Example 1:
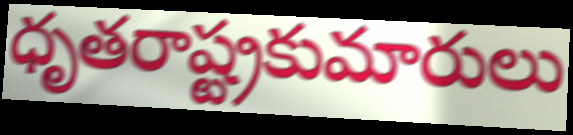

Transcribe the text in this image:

ధృతరాష్ట్రకుమారులు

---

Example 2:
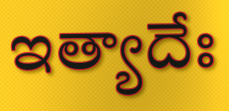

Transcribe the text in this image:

ఇత్యాదేః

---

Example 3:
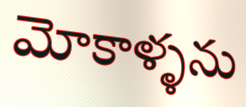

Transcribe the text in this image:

మోకాళ్ళను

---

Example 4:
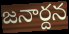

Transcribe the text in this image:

జనార్దన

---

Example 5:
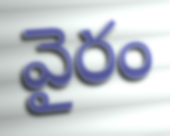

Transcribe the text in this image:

వైరం